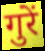
गुरें